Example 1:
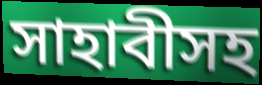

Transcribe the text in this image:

সাহাবীসহ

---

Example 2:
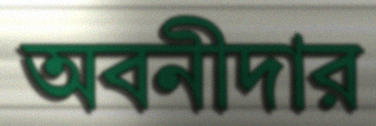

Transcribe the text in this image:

অবনীদার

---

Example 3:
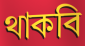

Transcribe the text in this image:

থাকবি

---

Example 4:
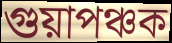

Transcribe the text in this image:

গুয়াপঞ্চক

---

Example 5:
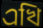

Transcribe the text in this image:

এখি